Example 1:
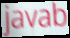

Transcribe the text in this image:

javab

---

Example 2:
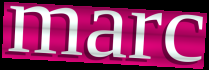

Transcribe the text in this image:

marc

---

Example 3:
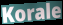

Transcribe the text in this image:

Korale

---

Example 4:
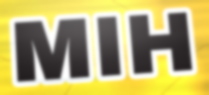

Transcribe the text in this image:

MIH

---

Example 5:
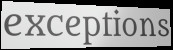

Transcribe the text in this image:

exceptions